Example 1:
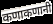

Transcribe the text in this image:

कणाकणानी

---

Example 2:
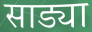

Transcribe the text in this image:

साड्या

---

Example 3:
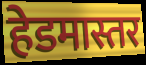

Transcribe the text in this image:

हेडमास्तर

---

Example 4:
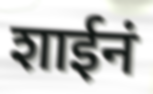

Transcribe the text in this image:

शाईनं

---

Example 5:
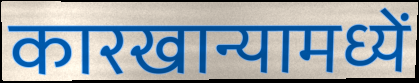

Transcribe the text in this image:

कारखान्यामध्यें